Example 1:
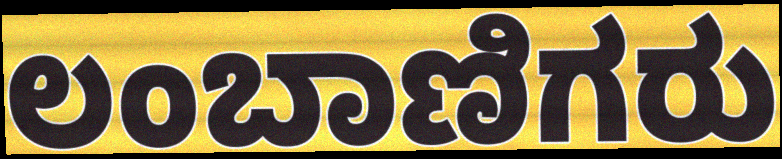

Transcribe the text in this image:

ಲಂಬಾಣಿಗರು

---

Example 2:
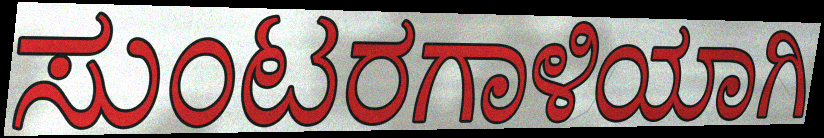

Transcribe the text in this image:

ಸುಂಟರಗಾಳಿಯಾಗಿ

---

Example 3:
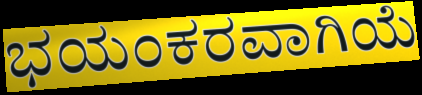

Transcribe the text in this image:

ಭಯಂಕರವಾಗಿಯೆ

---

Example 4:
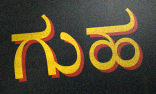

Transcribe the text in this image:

ಗುಹ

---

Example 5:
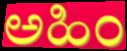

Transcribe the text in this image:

ಅಹಿಂ